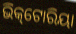
ଭିକ୍‌ଟୋରିୟା